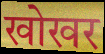
खोखर